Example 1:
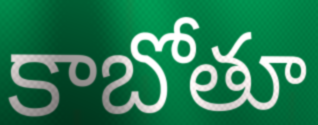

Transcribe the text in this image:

కాబోతూ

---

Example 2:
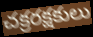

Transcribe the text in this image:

చక్రరక్షకులు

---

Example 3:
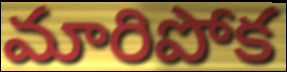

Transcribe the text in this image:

మారిపోక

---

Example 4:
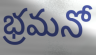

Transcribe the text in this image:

భ్రమనో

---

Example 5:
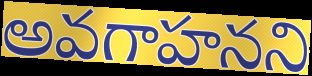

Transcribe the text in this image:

అవగాహనని